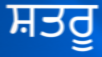
ਸ਼ਤਰੂ